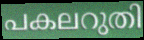
പകലറുതി